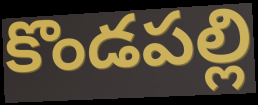
కొండపల్లి